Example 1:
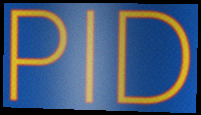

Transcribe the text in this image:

PID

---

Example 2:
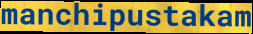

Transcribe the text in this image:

manchipustakam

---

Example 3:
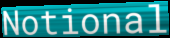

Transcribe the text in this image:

Notional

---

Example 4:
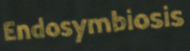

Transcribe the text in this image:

Endosymbiosis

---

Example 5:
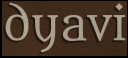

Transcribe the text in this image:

dyavi